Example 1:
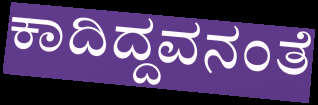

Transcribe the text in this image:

ಕಾದಿದ್ದವನಂತೆ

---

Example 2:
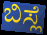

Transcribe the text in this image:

ಬಿಸ್ಲೆ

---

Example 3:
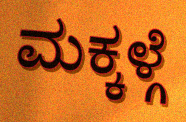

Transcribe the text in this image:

ಮಕ್ಕಳ್ಗೆ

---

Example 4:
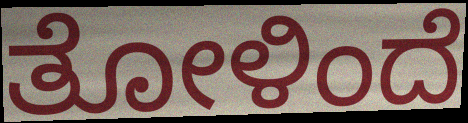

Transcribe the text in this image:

ತೋಳಿಂದೆ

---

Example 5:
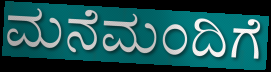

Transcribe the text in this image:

ಮನೆಮಂದಿಗೆ